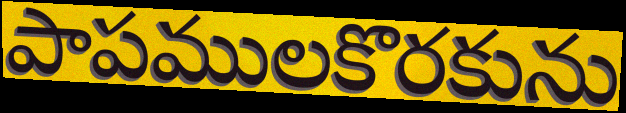
పాపములకొరకును